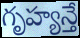
గృహ్యన్తే